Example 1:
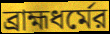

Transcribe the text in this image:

ব্রাহ্মধর্মের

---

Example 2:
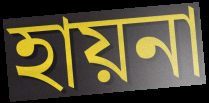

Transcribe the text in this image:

হায়না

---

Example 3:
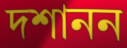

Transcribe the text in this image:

দশানন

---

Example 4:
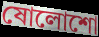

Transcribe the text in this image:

ষোলোশো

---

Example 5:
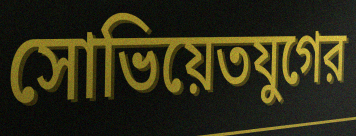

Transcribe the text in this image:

সোভিয়েতযুগের